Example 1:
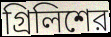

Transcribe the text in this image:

গ্রিলিশের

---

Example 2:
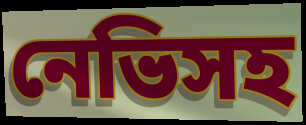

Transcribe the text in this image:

নেভিসহ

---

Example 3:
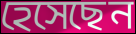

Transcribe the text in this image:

হেসেছেন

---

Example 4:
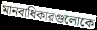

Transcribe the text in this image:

মানবাধিকারগুলোকে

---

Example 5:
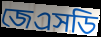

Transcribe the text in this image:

জেএসডি